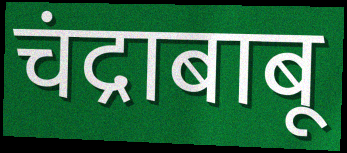
चंद्राबाबू